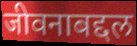
जीवनाबद्दल